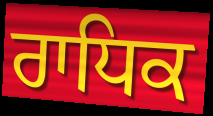
ਰਾਧਿਕ